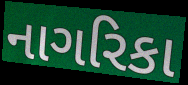
નાગરિકા